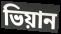
ভিয়ান